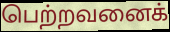
பெற்றவனைக்